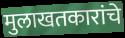
मुलाखतकारांचे